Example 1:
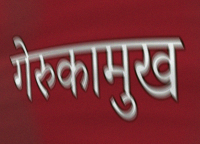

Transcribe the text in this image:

गेरुकामुख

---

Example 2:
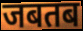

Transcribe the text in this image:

जबतब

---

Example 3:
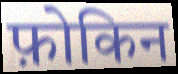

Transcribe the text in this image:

फ़ोकिन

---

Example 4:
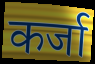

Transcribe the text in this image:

कर्जा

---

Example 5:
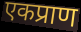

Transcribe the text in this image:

एकप्राण